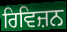
ਰਿਵਿਜ਼ਨ